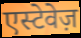
एस्टेवेज़